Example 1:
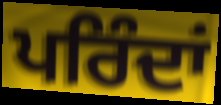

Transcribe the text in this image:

ਪਰਿੰਦਾਂ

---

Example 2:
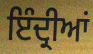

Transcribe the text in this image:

ਇੰਦ੍ਰੀਆਂ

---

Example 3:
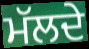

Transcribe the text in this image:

ਮੱਲਦੇ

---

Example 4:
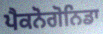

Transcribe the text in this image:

ਪੈਕਨੋਗੋਨਿਡਾ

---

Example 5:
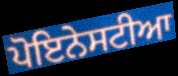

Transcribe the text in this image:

ਪੋਇਨੇਸਟੀਆ